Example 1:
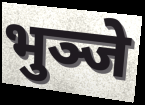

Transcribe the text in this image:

भुञ्जे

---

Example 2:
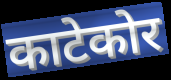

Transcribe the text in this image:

काटेकोर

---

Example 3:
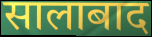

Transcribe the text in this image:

सालाबाद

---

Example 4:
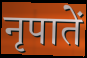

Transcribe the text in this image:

नृपातें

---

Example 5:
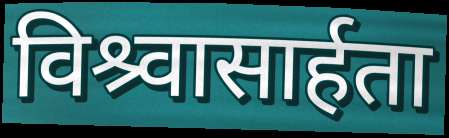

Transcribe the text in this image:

विश्र्वासार्हता